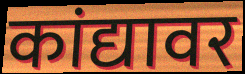
कांद्यावर